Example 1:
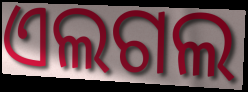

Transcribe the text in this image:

ଏଲଗଲ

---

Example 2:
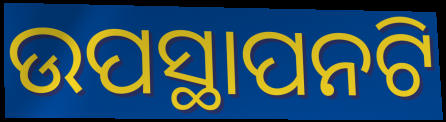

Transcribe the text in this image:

ଉପସ୍ଥାପନଟି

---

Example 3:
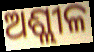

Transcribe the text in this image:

ଅଶ୍ଲୀଳ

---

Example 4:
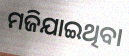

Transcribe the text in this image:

ମଜିଯାଇଥିବା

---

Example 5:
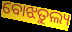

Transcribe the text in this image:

ବୋଝତୁଲ୍ୟ